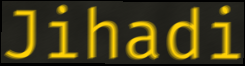
Jihadi